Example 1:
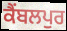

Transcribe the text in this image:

ਕੈਂਬਲਪੁਰ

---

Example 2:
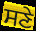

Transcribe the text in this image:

ਸਣੇ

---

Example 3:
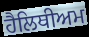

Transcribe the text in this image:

ਹੈਲਿਥੀਅਮ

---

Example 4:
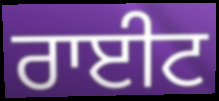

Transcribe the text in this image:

ਰਾਈਟ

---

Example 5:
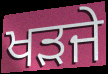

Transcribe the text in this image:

ਖੜਜੇ